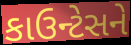
કાઉન્ટેસને